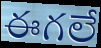
ఈగలే